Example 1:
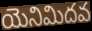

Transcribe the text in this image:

యెనిమిదవ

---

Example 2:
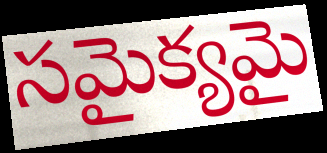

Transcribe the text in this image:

సమైక్యమై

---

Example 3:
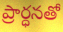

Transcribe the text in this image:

ప్రార్ధనతో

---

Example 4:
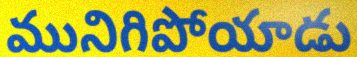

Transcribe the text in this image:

మునిగిపోయాడు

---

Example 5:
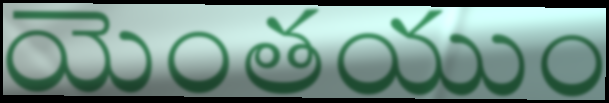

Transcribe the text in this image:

యెంతయుం